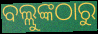
ବଲ୍ଲୁଙ୍କଠାରୁ